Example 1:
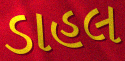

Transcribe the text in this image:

ડાહલ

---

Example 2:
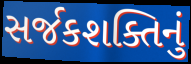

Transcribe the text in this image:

સર્જકશક્તિનું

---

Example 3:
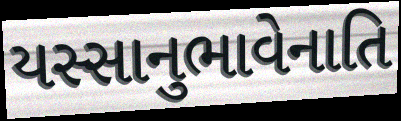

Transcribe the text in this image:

યસ્સાનુભાવેનાતિ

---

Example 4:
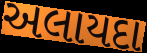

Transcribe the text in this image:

અલાયદા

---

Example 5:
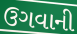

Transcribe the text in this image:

ઉગવાની